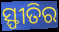
ସ୍ଫୀତିର